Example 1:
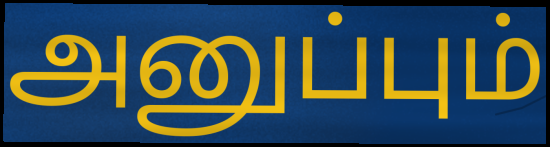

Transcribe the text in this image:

அனுப்பும்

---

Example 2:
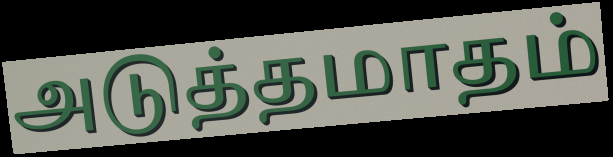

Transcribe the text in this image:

அடுத்தமாதம்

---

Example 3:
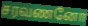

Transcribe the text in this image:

சரவணனோ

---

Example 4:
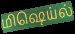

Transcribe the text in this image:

மிஷெய்ல்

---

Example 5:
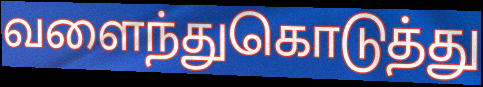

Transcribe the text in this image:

வளைந்துகொடுத்து